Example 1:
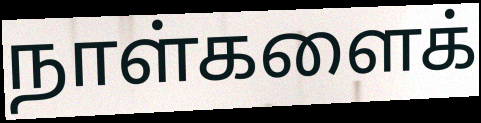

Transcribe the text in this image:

நாள்களைக்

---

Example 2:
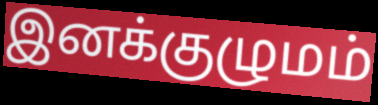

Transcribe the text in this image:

இனக்குழுமம்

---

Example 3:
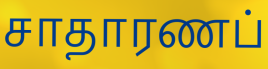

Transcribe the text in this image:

சாதாரணப்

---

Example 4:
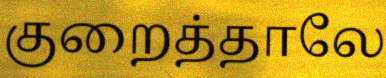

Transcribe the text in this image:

குறைத்தாலே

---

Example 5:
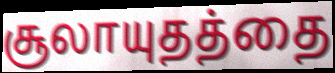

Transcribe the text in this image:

சூலாயுதத்தை